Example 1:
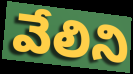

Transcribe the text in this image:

వేలిని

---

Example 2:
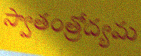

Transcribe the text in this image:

స్వాతంత్రోద్యమ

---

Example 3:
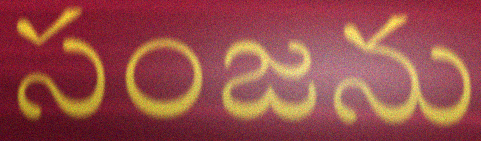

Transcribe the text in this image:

సంజను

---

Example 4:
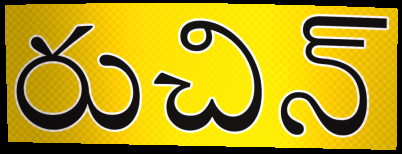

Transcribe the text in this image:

రుచిన్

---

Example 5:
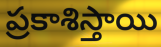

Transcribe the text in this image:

ప్రకాశిస్తాయి